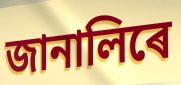
জানালিৰে